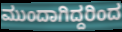
ಮುಂದಾಗಿದ್ದರಿಂದ